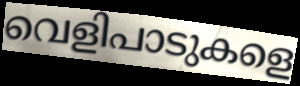
വെളിപാടുകളെ